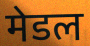
मेडल